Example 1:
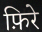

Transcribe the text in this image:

फ़िरे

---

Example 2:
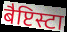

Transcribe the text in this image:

बैप्टिस्टा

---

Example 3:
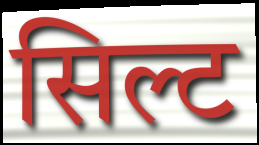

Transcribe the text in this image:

सिल्ट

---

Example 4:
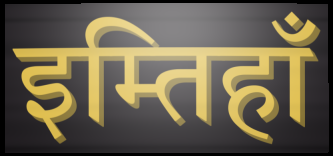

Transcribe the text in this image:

इम्तिहाँ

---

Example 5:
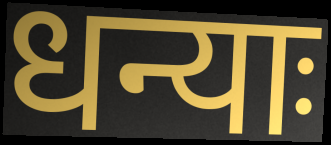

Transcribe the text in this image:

धन्याः